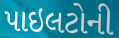
પાઇલટોની